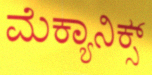
ಮೆಕ್ಯಾನಿಕ್ಸ್